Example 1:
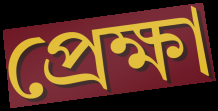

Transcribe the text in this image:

প্ৰেক্ষা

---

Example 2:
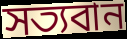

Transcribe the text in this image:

সত্যবান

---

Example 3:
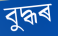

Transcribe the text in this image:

বুদ্ধৰ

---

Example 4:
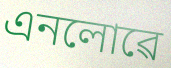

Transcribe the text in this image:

এনলোৱে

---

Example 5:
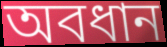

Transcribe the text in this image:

অবধান